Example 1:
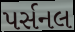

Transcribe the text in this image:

પર્સનલ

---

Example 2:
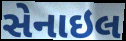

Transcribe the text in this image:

સેનાઇલ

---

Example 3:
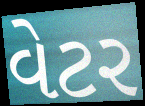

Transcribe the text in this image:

વેટર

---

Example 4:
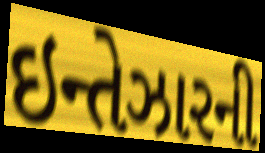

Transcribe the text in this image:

ઇન્તેઝારની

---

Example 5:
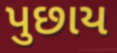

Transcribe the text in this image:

પુછાય